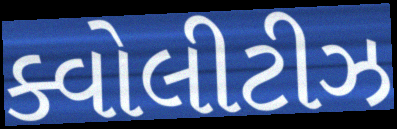
ક્વોલીટીઝ